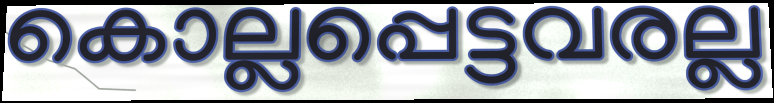
കൊല്ലപ്പെട്ടവരല്ല